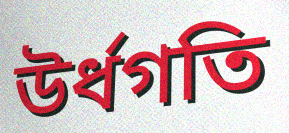
উর্ধগতি